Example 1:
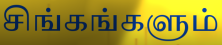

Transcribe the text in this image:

சிங்கங்களும்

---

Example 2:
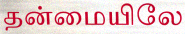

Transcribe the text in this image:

தன்மையிலே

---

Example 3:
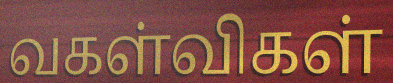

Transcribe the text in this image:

வகள்விகள்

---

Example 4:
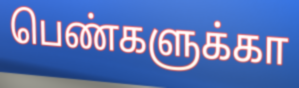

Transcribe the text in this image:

பெண்களுக்கா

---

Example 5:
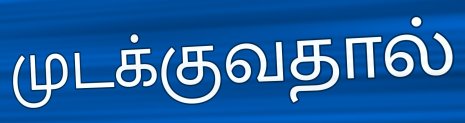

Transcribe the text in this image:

முடக்குவதால்